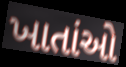
ખાતાંઓ